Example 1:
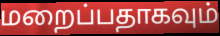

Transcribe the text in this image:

மறைப்பதாகவும்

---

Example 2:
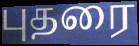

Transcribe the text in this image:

புதரை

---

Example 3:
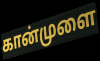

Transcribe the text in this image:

கான்முளை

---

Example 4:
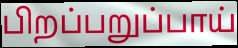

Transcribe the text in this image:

பிறப்பறுப்பாய்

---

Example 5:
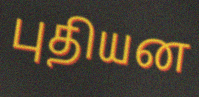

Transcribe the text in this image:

புதியன